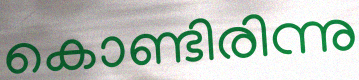
കൊണ്ടിരിന്നു